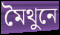
মৈথুনে